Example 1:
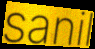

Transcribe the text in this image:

sanil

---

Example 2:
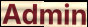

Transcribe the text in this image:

Admin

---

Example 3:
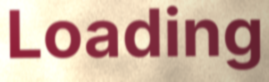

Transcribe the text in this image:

Loading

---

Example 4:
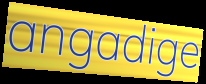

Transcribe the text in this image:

angadige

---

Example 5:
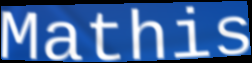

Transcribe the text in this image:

Mathis